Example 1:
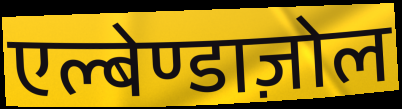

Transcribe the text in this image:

एल्बेण्डाज़ोल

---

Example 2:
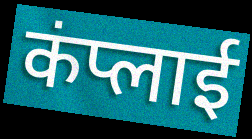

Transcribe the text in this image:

कंप्लाई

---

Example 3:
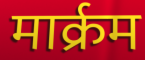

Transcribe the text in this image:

मार्क्रम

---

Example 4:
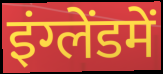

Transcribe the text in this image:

इंग्लेंडमें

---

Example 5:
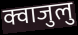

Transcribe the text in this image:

क्वाजुलु